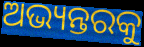
ଅଭ୍ୟନ୍ତରକୁ